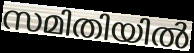
സമിതിയിൽ